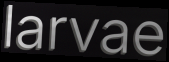
larvae